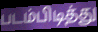
படம்பிடித்து